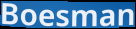
Boesman